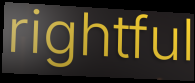
rightful